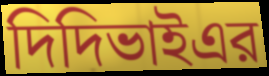
দিদিভাইএর